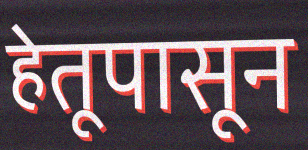
हेतूपासून